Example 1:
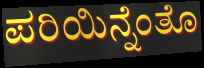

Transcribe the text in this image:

ಪರಿಯಿನ್ನೆಂತೊ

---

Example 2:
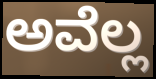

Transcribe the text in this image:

ಅವೆಲ್ಲ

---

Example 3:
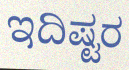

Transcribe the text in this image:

ಇದಿಷ್ಟರ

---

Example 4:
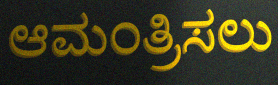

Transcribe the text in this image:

ಆಮಂತ್ರಿಸಲು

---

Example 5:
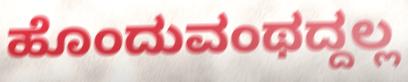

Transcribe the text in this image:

ಹೊಂದುವಂಥದ್ದಲ್ಲ